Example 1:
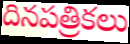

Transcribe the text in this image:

దినపత్రికలు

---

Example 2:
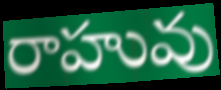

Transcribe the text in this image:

రాహువు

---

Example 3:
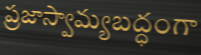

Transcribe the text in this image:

ప్రజాస్వామ్యబద్ధంగా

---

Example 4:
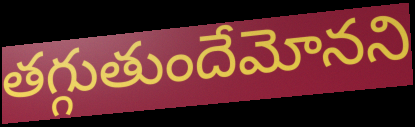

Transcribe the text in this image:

తగ్గుతుందేమోనని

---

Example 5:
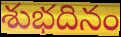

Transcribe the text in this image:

శుభదినం